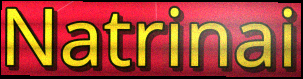
Natrinai